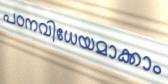
പഠനവിധേയമാക്കാം